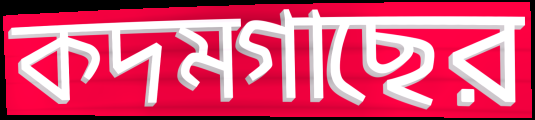
কদমগাছের